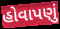
હોવાપણું